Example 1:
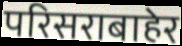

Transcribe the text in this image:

परिसराबाहेर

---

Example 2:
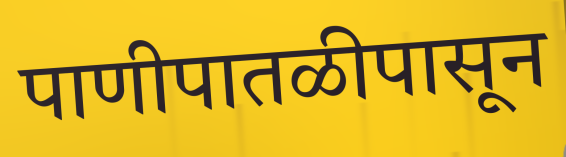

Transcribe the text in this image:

पाणीपातळीपासून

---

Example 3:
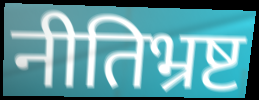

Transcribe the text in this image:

नीतिभ्रष्ट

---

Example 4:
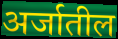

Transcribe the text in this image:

अर्जातील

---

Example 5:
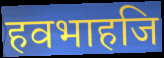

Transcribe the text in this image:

हवभाहजि